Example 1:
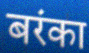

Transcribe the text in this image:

बरंका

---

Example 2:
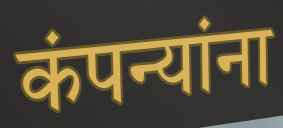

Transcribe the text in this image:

कंपन्यांना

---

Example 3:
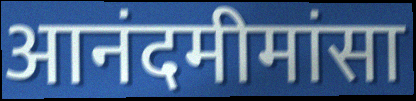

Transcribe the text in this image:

आनंदमीमांसा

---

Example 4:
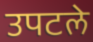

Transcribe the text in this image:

उपटले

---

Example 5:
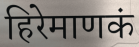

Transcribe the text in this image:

हिरेमाणकं